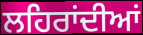
ਲਹਿਰਾਂਦੀਆਂ